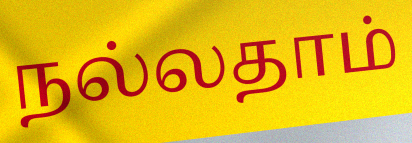
நல்லதாம்